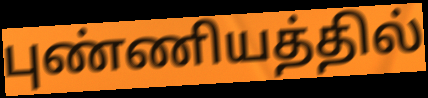
புண்ணியத்தில்